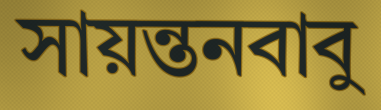
সায়ন্তনবাবু